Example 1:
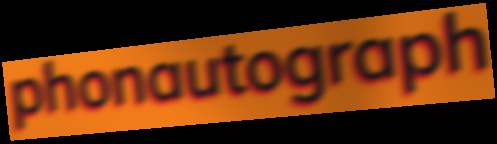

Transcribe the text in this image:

phonautograph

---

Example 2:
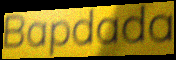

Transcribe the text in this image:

Bapdada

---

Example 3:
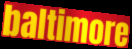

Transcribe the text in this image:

baltimore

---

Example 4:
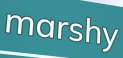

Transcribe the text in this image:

marshy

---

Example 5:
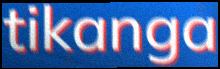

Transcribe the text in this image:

tikanga